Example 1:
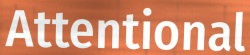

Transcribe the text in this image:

Attentional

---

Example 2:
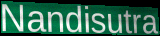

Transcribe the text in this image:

Nandisutra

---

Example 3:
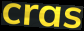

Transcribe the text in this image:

cras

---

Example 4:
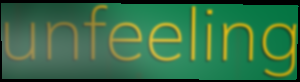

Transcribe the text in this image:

unfeeling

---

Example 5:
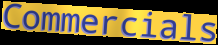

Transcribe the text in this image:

Commercials